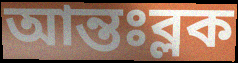
আন্তঃব্লক